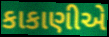
કાકાણીએ